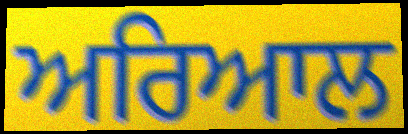
ਅਰਿਆਲ